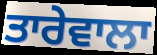
ਤਾਰੇਵਾਲਾ